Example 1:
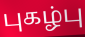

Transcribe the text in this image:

புகழ்பு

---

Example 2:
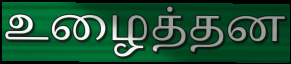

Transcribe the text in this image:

உழைத்தன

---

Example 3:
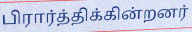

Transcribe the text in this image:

பிரார்த்திக்கின்றனர்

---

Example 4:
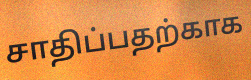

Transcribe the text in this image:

சாதிப்பதற்காக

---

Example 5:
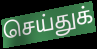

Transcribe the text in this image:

செய்துக்